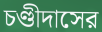
চণ্ডীদাসের